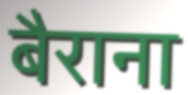
बैराना